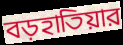
বড়হাতিয়ার